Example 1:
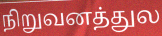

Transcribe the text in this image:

நிறுவனத்துல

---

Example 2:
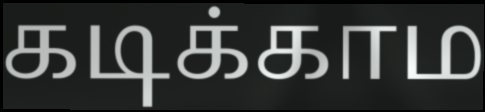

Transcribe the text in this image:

கடிக்காம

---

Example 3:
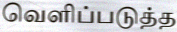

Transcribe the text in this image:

வெளிப்படுத்த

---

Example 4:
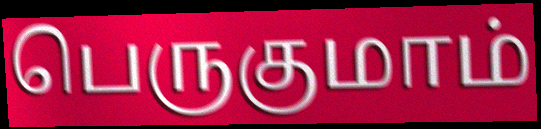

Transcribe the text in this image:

பெருகுமாம்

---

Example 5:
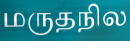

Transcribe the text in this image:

மருதநில